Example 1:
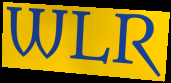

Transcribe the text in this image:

WLR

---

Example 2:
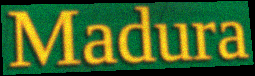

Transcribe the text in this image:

Madura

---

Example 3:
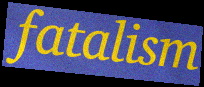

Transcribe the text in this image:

fatalism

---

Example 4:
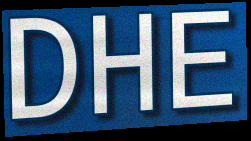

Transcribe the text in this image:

DHE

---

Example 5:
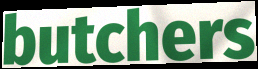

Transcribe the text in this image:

butchers